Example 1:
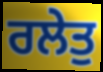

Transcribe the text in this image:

ਰਲੇਤੁ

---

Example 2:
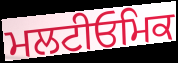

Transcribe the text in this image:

ਮਲਟੀਓਮਿਕ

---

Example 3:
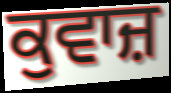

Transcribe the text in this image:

ਕੁਵਾਜ਼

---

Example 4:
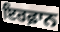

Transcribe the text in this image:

ਇਰਫ਼ਾਨ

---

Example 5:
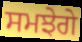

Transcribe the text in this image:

ਸਮਝੇਗੇ